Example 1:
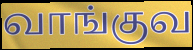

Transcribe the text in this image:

வாங்குவ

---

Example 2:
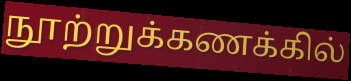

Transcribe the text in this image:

நூற்றுக்கணக்கில்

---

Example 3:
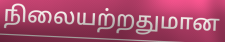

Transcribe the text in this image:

நிலையற்றதுமான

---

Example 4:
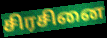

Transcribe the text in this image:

சிரசினை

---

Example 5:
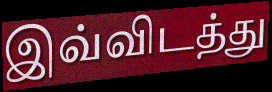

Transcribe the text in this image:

இவ்விடத்து